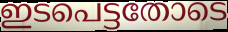
ഇടപെട്ടതോടെ